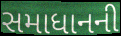
સમાધાનની